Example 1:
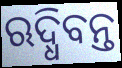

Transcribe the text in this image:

ଋଦ୍ଧିବନ୍ତ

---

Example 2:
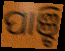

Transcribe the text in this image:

ପାଞ୍ଚି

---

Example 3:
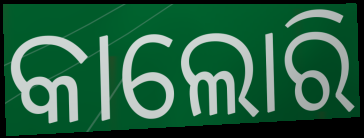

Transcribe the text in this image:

କାଲୋରି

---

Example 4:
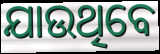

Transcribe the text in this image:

ଯାଉଥିବେ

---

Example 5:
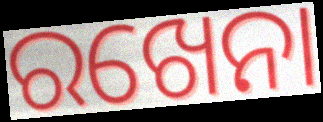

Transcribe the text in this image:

ରଖେନା